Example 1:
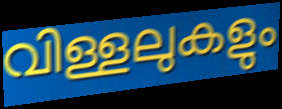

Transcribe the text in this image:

വിള്ളലുകളും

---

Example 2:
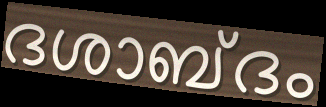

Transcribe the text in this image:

ദശാബ്ദം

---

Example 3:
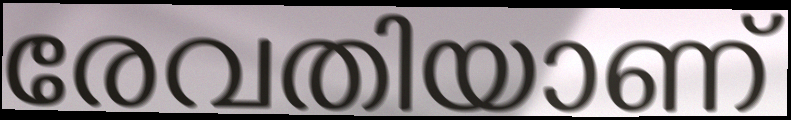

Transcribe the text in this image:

രേവതിയാണ്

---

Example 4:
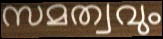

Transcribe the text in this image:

സമത്വവും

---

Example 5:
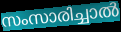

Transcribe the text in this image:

സംസാരിച്ചാൽ